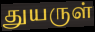
துயருள்